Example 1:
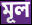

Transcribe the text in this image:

মূল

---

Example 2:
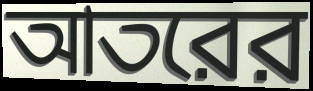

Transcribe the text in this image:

আতরের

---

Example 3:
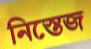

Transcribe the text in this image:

নিস্তেজ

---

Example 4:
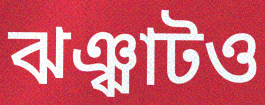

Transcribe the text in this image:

ঝঞ্ঝাটও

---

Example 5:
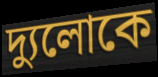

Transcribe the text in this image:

দ্যুলোকে